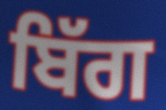
ਬਿੱਗ